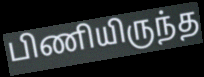
பிணியிருந்த